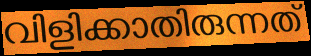
വിളിക്കാതിരുന്നത്